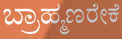
ಬ್ರಾಹ್ಮಣರೇಕೆ